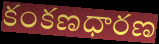
కంకణధారణ